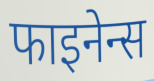
फाइनेन्स